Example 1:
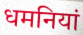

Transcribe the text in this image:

धमनियां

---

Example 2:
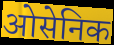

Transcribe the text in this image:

ओसेनिक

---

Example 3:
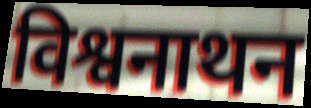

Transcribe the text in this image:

विश्वनाथन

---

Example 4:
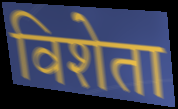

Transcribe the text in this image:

विशेता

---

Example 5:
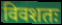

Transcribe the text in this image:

विवशतः